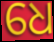
ଧେ